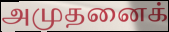
அமுதனைக்